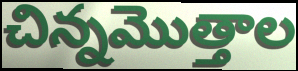
చిన్నమొత్తాల